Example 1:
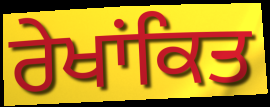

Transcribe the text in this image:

ਰੇਖਾਂਕਿਤ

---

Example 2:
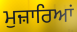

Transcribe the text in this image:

ਮੁਜ਼ਾਰਿਆਂ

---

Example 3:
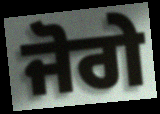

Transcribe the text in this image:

ਜੋਗੇ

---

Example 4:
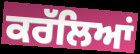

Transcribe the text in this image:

ਕਰੱਲਿਆਂ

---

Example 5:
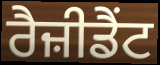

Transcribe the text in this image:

ਰੈਜ਼ੀਡੈਂਟ